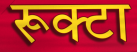
रूक्टा